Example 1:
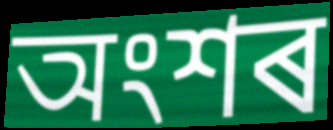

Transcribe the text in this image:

অংশৰ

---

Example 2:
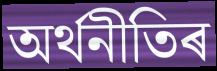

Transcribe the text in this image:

অৰ্থনীতিৰ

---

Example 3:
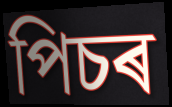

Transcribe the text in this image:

পিচৰ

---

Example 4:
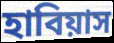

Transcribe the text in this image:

হাবিয়াস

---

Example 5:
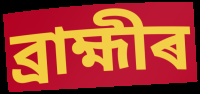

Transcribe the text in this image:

ব্ৰাহ্মীৰ